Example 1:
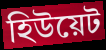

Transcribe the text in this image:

হিউয়েট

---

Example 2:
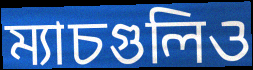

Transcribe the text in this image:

ম্যাচগুলিও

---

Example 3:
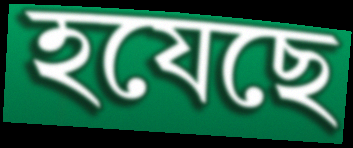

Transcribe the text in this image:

হযেছে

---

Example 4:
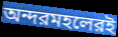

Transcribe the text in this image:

অন্দরমহলেরই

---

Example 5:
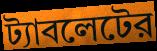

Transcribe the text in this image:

ট্যাবলেটের